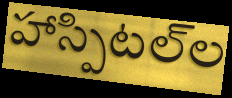
హాస్పిటల్‌ల